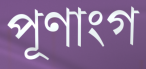
পূণাংগ